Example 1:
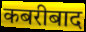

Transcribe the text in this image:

कबरीबाद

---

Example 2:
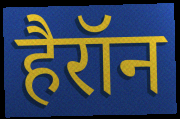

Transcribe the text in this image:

हैरॉन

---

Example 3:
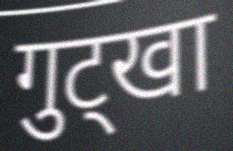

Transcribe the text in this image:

गुट्खा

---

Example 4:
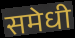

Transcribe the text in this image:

समेधी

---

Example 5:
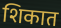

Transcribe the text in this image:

शिकात